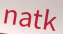
natk